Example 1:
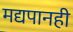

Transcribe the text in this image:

मद्यपानही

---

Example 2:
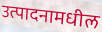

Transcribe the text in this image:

उत्पादनामधील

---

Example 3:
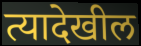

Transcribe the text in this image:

त्यादेखील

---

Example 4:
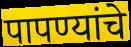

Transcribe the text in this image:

पापण्यांचे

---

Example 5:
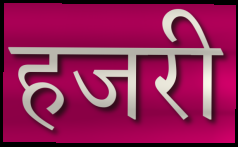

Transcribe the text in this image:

हजरी